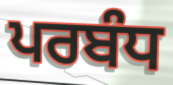
ਪਰਬੰਧ